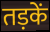
तड़कें